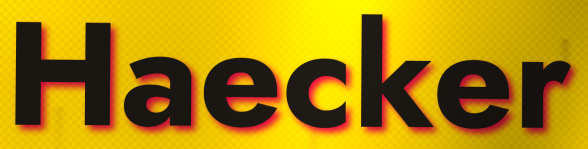
Haecker